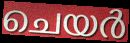
ചെയർ